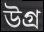
উগ্র